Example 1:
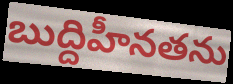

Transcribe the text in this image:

బుద్దిహీనతను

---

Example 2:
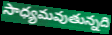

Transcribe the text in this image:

సాధ్యమవుతున్నది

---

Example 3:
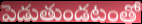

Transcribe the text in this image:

పెడుతుండటంతో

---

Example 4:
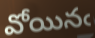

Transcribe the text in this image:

వోయినఁ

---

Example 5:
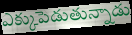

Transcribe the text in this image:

ఎక్కుపెడుతున్నాడు